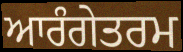
ਆਰੰਗੇਤਰਮ